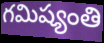
గమిష్యంతి